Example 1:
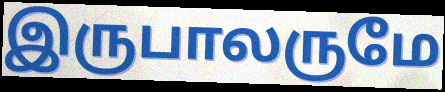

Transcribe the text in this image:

இருபாலருமே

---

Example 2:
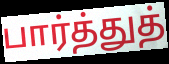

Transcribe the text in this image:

பார்த்துத்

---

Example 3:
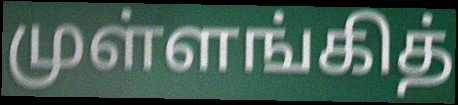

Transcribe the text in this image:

முள்ளங்கித்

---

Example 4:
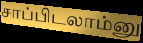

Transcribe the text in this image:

சாப்பிடலாம்னு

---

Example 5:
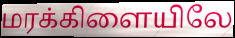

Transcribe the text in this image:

மரக்கிளையிலே